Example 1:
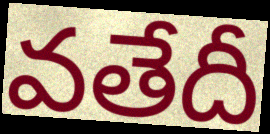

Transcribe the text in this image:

వతేదీ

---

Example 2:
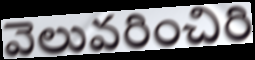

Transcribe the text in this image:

వెలువరించిరి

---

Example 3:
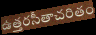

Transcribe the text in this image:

ఉత్తరసీతాచరితం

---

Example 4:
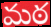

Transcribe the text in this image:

మఠ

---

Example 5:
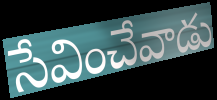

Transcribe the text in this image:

సేవించేవాడు